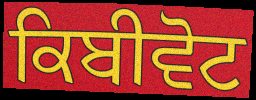
ਕਿਬੀਵੋਟ